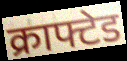
क्राफ्टेड